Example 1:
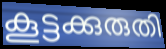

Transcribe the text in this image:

കൂട്ടക്കുരുതി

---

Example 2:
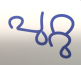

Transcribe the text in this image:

പുറ്റു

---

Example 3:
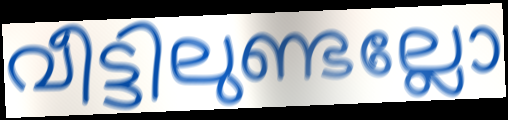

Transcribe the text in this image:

വീട്ടിലുണ്ടല്ലോ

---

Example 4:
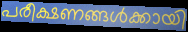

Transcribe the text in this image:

പരീക്ഷണങ്ങൾക്കായി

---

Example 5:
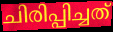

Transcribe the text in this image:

ചിരിപ്പിച്ചത്